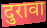
दुरावा